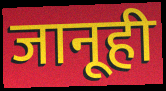
जानूही